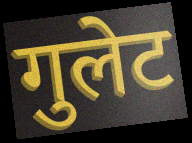
गुलेट